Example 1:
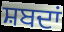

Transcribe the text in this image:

ਸ਼ਬਦਾਂ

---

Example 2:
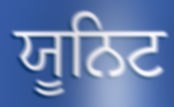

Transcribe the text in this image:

ਯੂਨਿਟ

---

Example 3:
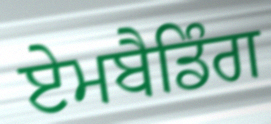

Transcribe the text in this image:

ਏਮਬੈਡਿੰਗ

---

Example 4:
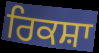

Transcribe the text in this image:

ਰਿਕਸ਼ਾ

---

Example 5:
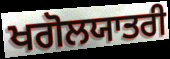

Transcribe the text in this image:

ਖਗੋਲਯਾਤਰੀ